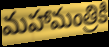
మహామంత్రికి